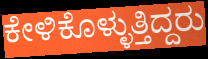
ಕೇಳಿಕೊಳ್ಳುತ್ತಿದ್ದರು